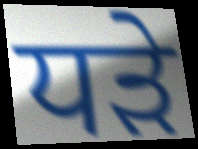
ਧੜੇ